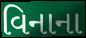
વિનાના